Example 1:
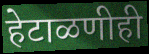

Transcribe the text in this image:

हेटाळणीही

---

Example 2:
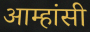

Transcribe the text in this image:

आम्हांसी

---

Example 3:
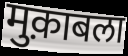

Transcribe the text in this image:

मुक़ाबला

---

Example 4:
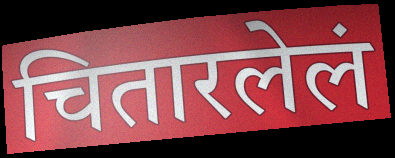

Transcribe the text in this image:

चितारलेलं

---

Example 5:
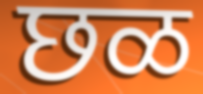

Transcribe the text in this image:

छळ